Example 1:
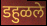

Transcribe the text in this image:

डहुळले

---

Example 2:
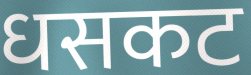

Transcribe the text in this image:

धसकट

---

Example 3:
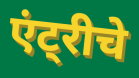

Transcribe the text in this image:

एंट्रीचे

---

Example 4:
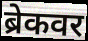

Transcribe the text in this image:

ब्रेकवर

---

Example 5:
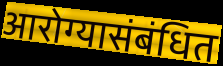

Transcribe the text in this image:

आरोग्यासंबंधित